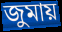
জুমায়